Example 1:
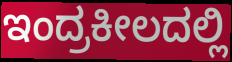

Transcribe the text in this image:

ಇಂದ್ರಕೀಲದಲ್ಲಿ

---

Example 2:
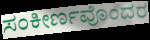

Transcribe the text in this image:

ಸಂಕೀರ್ಣವೊಂದರ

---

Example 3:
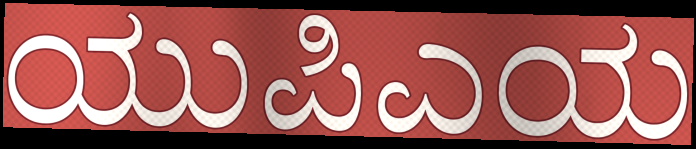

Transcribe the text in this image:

ಯುಪಿಎಯ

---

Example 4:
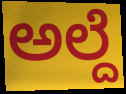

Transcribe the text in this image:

ಅಲ್ದೆ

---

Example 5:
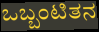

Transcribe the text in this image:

ಒಬ್ಬಂಟಿತನ